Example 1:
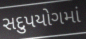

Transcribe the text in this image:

સદુપયોગમાં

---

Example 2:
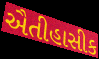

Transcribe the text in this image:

ઐતીહાસીક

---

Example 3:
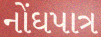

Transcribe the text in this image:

નોંઘપાત્ર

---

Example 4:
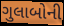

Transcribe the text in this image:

ગુલાબોની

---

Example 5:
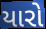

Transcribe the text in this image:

યારો